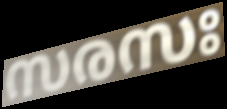
സരസഃ